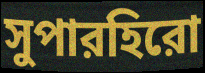
সুপারহিরো